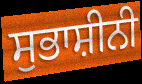
ਸੁਭਾਸ਼ੀਨੀ